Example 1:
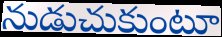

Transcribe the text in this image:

నుడుచుకుంటూ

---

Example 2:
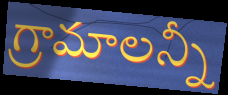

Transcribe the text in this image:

గ్రామాలన్నీ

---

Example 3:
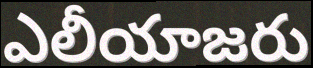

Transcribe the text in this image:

ఎలీయాజరు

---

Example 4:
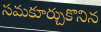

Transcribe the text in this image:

సమకూర్చుకొనిన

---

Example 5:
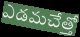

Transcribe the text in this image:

ఎడమచేత్తో